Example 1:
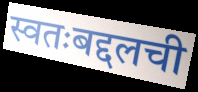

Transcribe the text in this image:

स्वतःबद्दलची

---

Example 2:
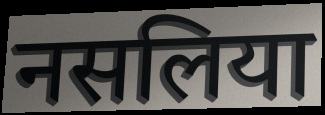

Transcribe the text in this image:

नसलिया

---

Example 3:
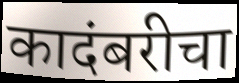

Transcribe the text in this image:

कादंबरीचा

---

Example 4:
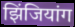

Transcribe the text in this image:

झिंजियांग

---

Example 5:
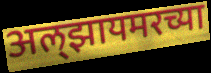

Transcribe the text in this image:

अल्झायमरच्या